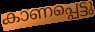
കാണപ്പെട്ടു